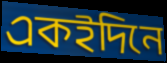
একইদিনে